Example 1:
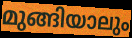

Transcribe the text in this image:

മുങ്ങിയാലും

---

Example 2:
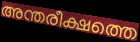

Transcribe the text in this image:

അന്തരീക്ഷത്തെ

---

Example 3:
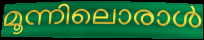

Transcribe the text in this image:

മൂന്നിലൊരാൾ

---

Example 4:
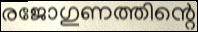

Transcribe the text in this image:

രജോഗുണത്തിന്റെ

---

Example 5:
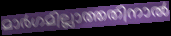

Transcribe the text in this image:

മാർഗമില്ലാത്തതിനാൽ